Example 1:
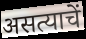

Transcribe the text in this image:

असत्याचें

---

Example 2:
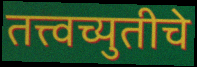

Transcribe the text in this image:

तत्त्वच्युतीचे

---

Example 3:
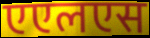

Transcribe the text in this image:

एएलएस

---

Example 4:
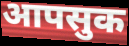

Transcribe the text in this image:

आपसुक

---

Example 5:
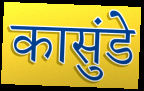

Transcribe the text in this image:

कासुंडे